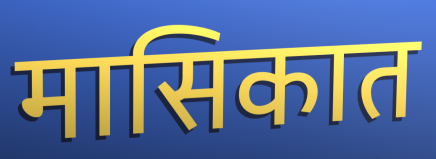
मासिकात